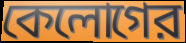
কেলোগের